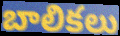
బాలికలు